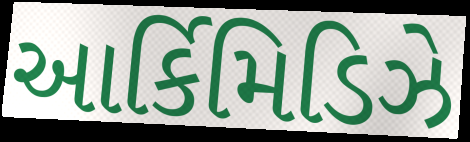
આર્કિમિડિઝે